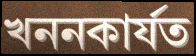
খননকাৰ্যত